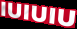
IUIUIU